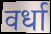
वर्धा